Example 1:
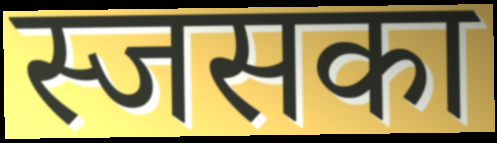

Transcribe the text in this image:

स्जसका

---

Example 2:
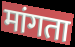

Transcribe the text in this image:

मांगता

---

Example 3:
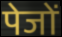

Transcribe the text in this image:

पेजों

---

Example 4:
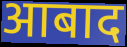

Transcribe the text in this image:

आबाद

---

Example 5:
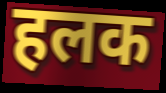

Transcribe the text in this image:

हलक